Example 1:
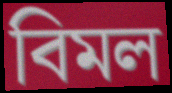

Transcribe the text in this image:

বিমল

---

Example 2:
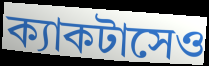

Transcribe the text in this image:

ক্যাকটাসেও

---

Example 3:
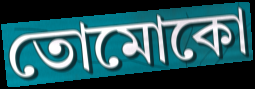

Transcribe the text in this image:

তোমোকো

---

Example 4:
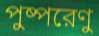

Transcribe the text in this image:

পুষ্পরেণু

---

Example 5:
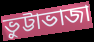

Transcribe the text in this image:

ভুট্টাভাজা